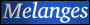
Melanges